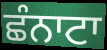
ਛੰਨਾਟਾ